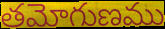
తమోగుణము